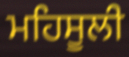
ਮਹਿਸੂਲੀ